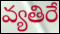
వ్యతిరే